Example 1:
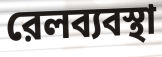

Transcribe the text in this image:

রেলব্যবস্থা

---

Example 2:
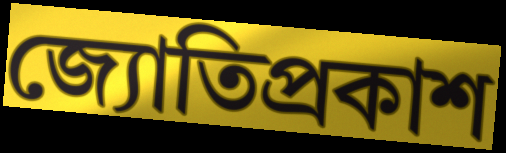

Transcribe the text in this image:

জ্যোতিপ্রকাশ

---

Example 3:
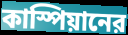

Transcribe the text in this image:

কাস্পিয়ানের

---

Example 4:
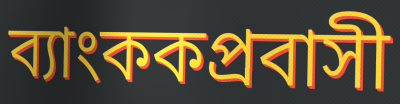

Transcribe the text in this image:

ব্যাংককপ্রবাসী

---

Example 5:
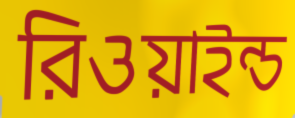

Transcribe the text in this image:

রিওয়াইন্ড